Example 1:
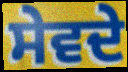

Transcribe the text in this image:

ਸੇਵਦੇ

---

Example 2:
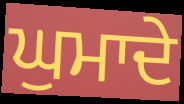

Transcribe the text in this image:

ਘੁਮਾਦੇ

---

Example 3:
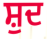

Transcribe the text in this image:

ਸ਼ੁਦ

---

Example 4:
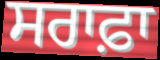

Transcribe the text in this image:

ਸਰਾਫ਼ਾ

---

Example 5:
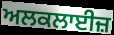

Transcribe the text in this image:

ਅਲਕਲਾਈਜ਼